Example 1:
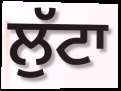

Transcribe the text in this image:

ਲੁੱਟਾ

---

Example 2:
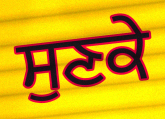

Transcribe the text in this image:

ਸੁਣਕੇ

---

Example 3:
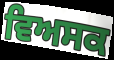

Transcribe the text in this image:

ਵਿਅਸਕ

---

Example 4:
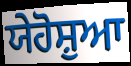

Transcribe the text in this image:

ਯੇਹੋਸ਼ੁਆ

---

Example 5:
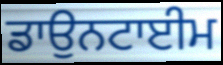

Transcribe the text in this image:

ਡਾਉਨਟਾਈਮ